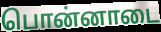
பொன்னாடை